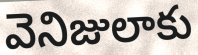
వెనిజులాకు